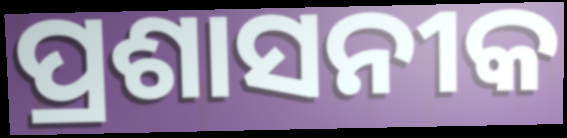
ପ୍ରଶାସନୀକ